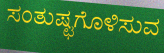
ಸಂತುಷ್ಟಗೊಳಿಸುವ